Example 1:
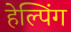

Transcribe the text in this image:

हेल्पिंग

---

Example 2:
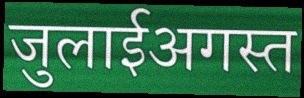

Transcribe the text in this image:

जुलाईअगस्त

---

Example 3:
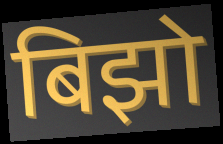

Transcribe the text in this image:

बिझो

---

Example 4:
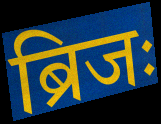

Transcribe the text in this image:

ब्रिजः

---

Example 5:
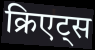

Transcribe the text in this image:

क्रिएट्स